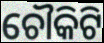
ଚୌକିଟି